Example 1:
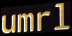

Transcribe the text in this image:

umrl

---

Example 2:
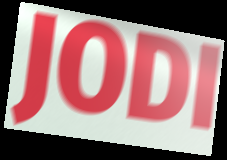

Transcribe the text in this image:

JODI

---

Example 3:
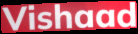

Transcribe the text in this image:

Vishaad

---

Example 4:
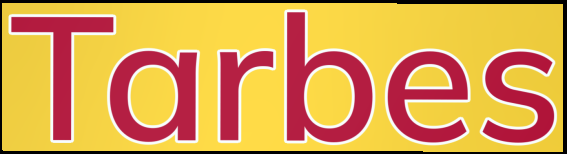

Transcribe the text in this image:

Tarbes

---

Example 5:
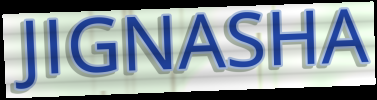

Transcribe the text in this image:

JIGNASHA